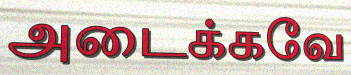
அடைக்கவே